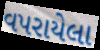
વપરાયેલા